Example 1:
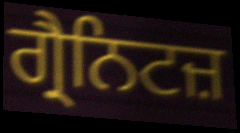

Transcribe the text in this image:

ਗ੍ਰੈਨਿਟਜ਼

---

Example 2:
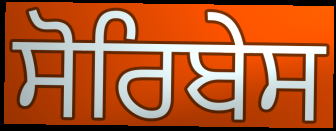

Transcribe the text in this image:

ਸੋਰਿਬੇਸ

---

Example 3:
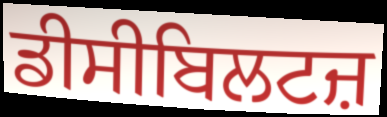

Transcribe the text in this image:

ਡੀਸੀਬਿਲਟਜ਼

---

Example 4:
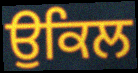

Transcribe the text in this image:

ਉਕਿਲ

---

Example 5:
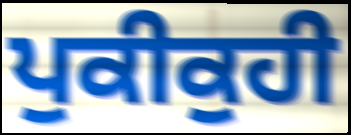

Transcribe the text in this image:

ਪੁਕੀਕੁਹੀ